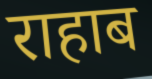
राहाब